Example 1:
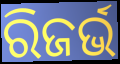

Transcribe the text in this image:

ରିଜର୍ଭ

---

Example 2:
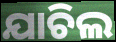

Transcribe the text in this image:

ଯାଚିଲ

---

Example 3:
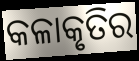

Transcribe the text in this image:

କଳାକୃତିର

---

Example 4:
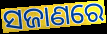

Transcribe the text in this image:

ସଜାଣରେ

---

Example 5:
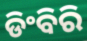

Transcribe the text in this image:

ଡିଂବିରି